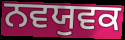
ਨਵਯੁਵਕ